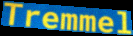
Tremmel